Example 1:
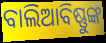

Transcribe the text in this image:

ବାଲିଆବିଷ୍ଣୁଙ୍କ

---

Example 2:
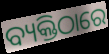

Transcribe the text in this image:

ବ୍ୟକ୍ତିଠାରେ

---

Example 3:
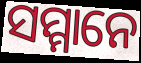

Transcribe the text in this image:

ସମ୍ମାନେ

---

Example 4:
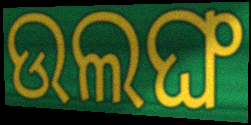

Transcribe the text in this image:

ଉଲଙ୍ଘ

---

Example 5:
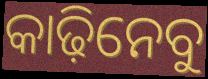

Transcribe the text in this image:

କାଢ଼ିନେବୁ